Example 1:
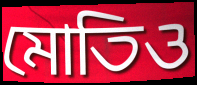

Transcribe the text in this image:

মোতিও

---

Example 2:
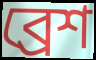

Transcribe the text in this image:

ব্রেশ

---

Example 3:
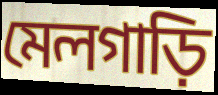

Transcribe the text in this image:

মেলগাড়ি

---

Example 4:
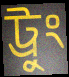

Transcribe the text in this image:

ট্রুং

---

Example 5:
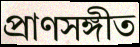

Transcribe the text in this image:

প্রাণসঙ্গীত